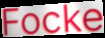
Focke